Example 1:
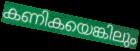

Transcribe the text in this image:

കണികയെങ്കിലും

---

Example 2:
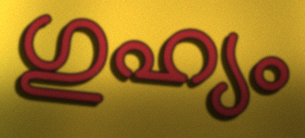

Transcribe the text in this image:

ഗുഹ്യം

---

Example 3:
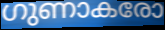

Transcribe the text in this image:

ഗുണാകരോ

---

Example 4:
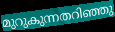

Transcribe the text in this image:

മുറുകുന്നതറിഞ്ഞു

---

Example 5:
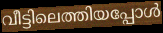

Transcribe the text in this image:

വീട്ടിലെത്തിയപ്പോൾ